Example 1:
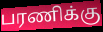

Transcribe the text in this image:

பரணிக்கு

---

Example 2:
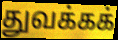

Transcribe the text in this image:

துவக்கக்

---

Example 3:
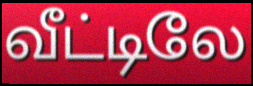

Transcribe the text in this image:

வீட்டிலே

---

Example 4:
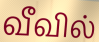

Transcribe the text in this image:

வீவில்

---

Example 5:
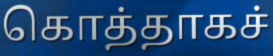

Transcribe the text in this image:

கொத்தாகச்